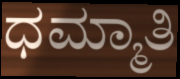
ಧಮ್ಮಾತಿ